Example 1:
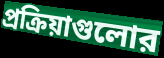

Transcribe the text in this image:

প্রক্রিয়াগুলোর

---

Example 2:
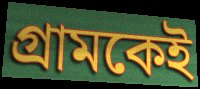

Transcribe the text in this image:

গ্রামকেই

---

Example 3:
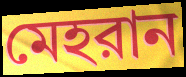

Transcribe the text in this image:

মেহরান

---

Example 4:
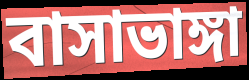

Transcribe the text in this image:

বাসাভাঙ্গা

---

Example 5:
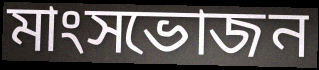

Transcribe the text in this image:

মাংসভোজন